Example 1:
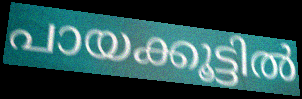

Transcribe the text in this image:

പായക്കൂട്ടിൽ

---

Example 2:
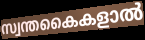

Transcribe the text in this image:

സ്വന്തകൈകളാൽ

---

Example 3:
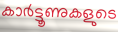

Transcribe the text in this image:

കാർട്ടൂണുകളുടെ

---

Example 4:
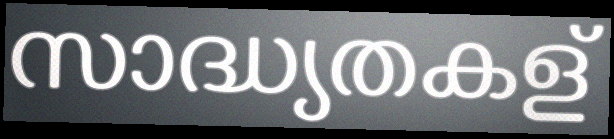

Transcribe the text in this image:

സാദ്ധ്യതകള്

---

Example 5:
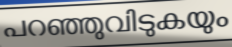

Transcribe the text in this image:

പറഞ്ഞുവിടുകയും